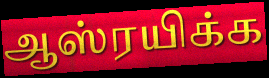
ஆஸ்ரயிக்க